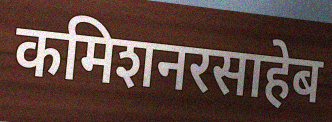
कमिशनरसाहेब